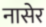
नासेर